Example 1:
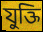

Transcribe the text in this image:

যুক্তি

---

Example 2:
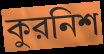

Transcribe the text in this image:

কুরনিশ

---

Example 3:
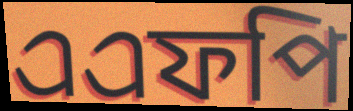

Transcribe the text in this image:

এএফপি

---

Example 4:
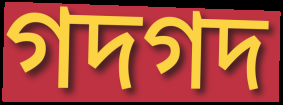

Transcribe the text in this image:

গদগদ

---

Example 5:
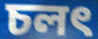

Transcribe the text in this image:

চলৎ